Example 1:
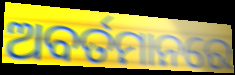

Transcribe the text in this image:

ଅବର୍ତମାନରେ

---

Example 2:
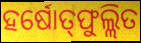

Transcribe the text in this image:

ହର୍ଷୋତ୍‌ଫୁଲ୍ଲିତ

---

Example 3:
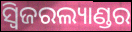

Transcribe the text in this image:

ସ୍ୱିଜରଲ୍ୟାଣ୍ଡର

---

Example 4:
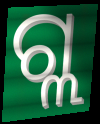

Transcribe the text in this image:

ଗ୍ଲ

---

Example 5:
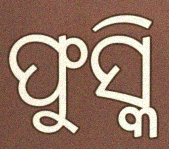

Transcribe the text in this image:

ଫୁସ୍କି